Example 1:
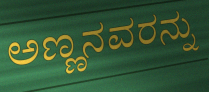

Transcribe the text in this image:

ಅಣ್ಣನವರನ್ನು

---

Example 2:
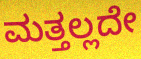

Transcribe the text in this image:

ಮತ್ತಲ್ಲದೇ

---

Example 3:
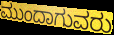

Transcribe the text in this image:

ಮುಂದಾಗುವರು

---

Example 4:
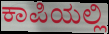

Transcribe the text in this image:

ಕಾಪಿಯಲ್ಲಿ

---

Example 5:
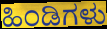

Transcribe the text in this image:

ಹಿಂಡಿಗಳು